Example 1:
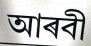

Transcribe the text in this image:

আৰবী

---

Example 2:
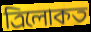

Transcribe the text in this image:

ত্ৰিলোকত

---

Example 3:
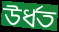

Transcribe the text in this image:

উৰ্ধত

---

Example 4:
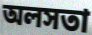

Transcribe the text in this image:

অলসতা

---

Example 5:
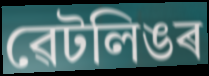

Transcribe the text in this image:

ৱেটলিঙৰ